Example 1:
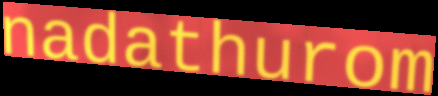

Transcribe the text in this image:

nadathurom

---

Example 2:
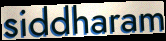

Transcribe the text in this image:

siddharam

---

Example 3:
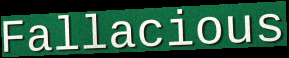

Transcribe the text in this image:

Fallacious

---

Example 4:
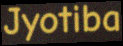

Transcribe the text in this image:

Jyotiba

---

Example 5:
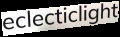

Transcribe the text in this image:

eclecticlight